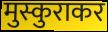
मुस्‍कुराकर